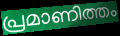
പ്രമാണിത്തം